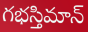
గభస్తిమాన్